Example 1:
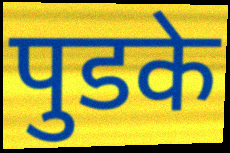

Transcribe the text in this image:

पुडके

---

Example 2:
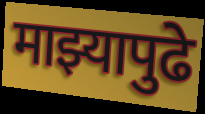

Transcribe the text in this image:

माझ्यापुढे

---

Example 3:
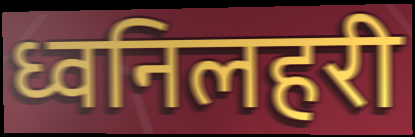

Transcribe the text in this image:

ध्वनिलहरी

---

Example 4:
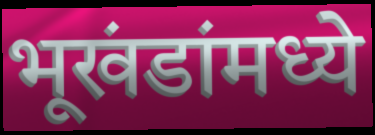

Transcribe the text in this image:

भूखंडांमध्ये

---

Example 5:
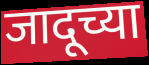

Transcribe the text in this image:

जादूच्या